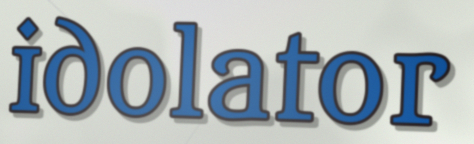
idolator